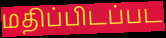
மதிப்பிடப்பட